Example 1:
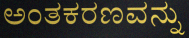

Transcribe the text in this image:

ಅಂತಕರಣವನ್ನು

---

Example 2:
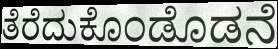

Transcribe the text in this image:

ತೆರೆದುಕೊಂಡೊಡನೆ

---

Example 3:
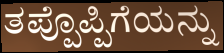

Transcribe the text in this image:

ತಪ್ಪೊಪ್ಪಿಗೆಯನ್ನು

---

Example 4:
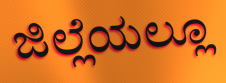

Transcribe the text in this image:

ಜಿಲ್ಲೆಯಲ್ಲೂ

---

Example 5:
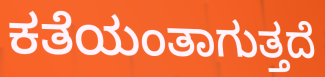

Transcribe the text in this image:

ಕತೆಯಂತಾಗುತ್ತದೆ